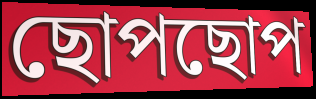
ছোপছোপ